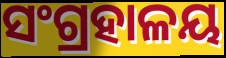
ସଂଗ୍ରହାଳୟ